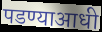
पडण्याआधी